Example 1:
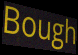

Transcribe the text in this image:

Bough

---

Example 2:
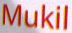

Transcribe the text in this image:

Mukil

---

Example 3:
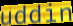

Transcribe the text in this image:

uddin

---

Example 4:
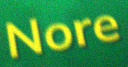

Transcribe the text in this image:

Nore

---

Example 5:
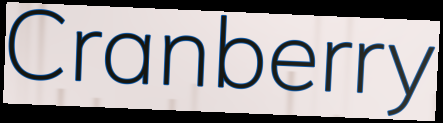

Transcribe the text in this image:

Cranberry